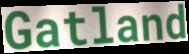
Gatland